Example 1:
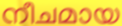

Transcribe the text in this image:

നീചമായ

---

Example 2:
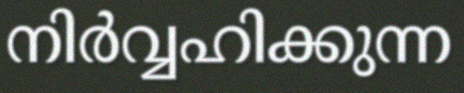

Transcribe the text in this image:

നിർവ്വഹിക്കുന്ന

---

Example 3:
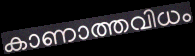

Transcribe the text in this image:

കാണാത്തവിധം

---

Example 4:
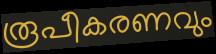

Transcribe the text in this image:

രൂപീകരണവും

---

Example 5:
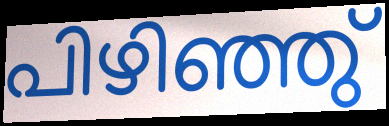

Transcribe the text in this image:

പിഴിഞ്ഞു്